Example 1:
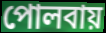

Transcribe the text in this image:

পোলবায়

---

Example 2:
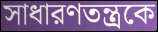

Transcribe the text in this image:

সাধারণতন্ত্রকে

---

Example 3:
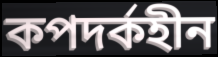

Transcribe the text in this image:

কপদর্কহীন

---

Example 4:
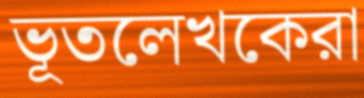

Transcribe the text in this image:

ভূতলেখকেরা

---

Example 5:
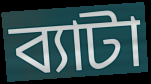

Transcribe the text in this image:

ব্যাটা